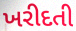
ખરીદતી